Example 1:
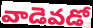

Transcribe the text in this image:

వాడెవడో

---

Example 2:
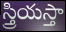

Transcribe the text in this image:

స్త్రియస్తా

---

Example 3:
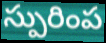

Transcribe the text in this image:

స్పురింప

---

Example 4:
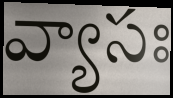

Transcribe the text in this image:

వ్యాసః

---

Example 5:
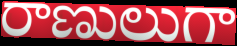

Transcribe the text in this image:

రాణులుగా